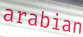
arabian